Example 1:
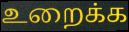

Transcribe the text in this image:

உறைக்க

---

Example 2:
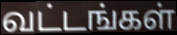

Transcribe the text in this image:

வட்டங்கள்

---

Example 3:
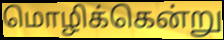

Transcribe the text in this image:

மொழிக்கென்று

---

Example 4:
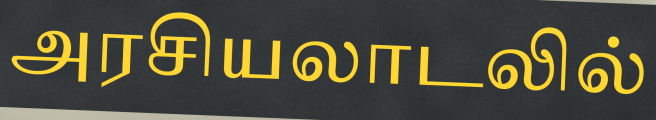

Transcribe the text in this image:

அரசியலாடலில்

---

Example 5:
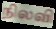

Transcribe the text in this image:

நிலவி